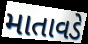
માતાવડે